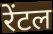
रेंटल